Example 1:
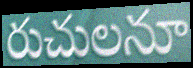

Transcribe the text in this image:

రుచులనూ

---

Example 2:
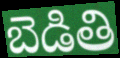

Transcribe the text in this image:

బెడితి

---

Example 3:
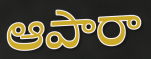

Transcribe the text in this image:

ఆపారా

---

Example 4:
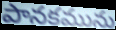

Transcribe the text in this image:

పానకమును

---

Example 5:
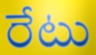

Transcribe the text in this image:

రేటు